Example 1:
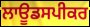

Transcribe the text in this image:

ਲਾਊਡਸਪੀਕਰ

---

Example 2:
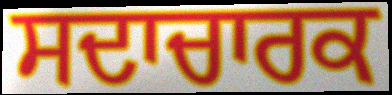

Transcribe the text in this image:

ਸਦਾਚਾਰਕ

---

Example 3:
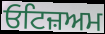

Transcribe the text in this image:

ਓਟਿਜ਼ਅਮ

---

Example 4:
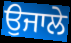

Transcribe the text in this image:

ਉਜਾਲੇ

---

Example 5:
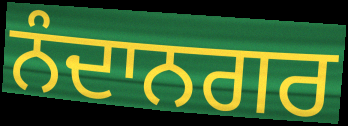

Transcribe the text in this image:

ਨੰਦਾਨਗਰ